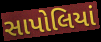
સાપોલિયાં